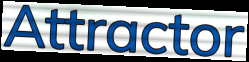
Attractor